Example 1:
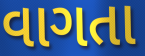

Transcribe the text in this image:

વાગતા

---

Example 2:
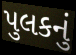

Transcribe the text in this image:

પુલકનું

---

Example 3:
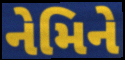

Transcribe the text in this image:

નેમિને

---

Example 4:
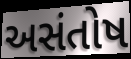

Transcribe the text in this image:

અસંતોષ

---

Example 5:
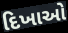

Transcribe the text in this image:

દિખાઓ